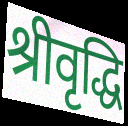
श्रीवृद्धि